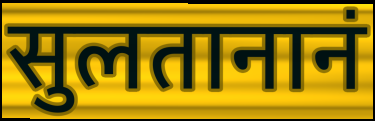
सुलतानानं